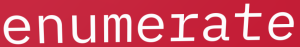
enumerate